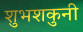
शुभशकुनी